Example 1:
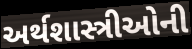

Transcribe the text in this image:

અર્થશાસ્ત્રીઓની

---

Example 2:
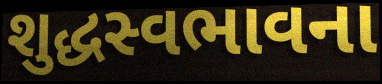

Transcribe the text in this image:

શુદ્ધસ્વભાવના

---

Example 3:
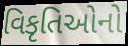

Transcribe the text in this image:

વિકૃતિઓનો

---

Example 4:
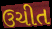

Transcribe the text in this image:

ઉચીત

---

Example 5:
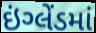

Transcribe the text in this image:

ઇંગ્લેંડમાં